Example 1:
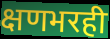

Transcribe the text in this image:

क्षणभरही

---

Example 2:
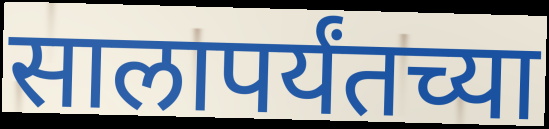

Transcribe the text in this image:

सालापर्यंतच्या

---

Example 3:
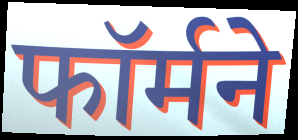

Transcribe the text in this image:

फॉर्मने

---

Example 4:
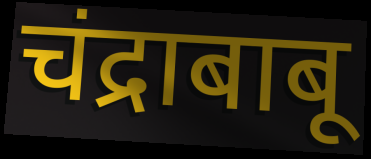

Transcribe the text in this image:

चंद्राबाबू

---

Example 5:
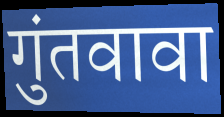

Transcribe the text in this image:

गुंतवावा